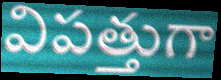
విపత్తుగా